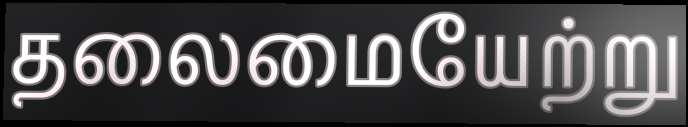
தலைமையேற்று